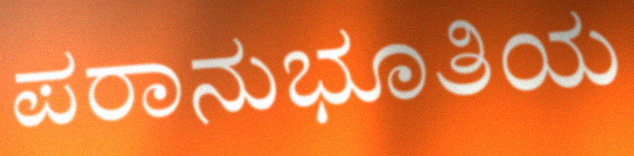
ಪರಾನುಭೂತಿಯ